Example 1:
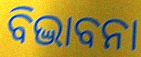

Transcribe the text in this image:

ବିଦ୍ଭାବନା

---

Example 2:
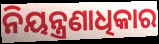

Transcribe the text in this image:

ନିୟନ୍ତ୍ରଣାଧିକାର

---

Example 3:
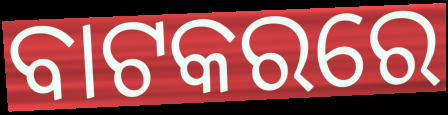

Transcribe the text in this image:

ବାଟକରରେ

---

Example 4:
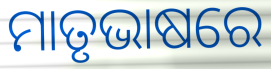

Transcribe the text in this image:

ମାତୃଭାଷରେ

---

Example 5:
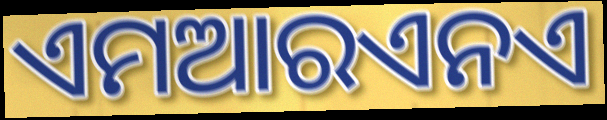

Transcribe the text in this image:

ଏମଆରଏନଏ